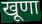
खूणा